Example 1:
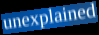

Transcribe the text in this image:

unexplained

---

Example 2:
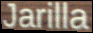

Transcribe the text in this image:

Jarilla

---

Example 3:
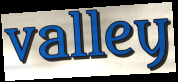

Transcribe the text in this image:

valley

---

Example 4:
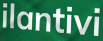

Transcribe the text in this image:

ilantivi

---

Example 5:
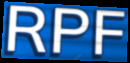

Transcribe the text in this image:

RPF